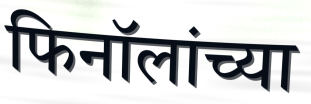
फिनॉलांच्या